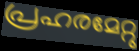
പ്രഹരമേറ്റു